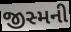
જીસ્મની